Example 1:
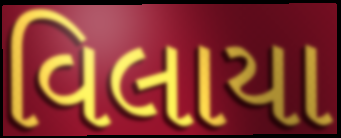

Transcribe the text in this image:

વિલાયા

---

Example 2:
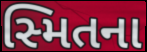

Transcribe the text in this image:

સ્મિતના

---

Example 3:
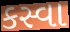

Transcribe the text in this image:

કસ્વા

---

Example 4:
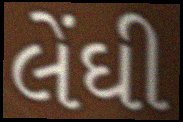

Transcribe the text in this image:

લેંઘી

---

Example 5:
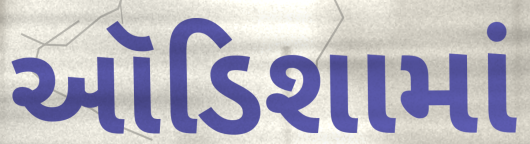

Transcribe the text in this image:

ઑડિશામાં